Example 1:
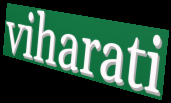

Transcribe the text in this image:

viharati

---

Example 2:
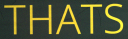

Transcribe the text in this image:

THATS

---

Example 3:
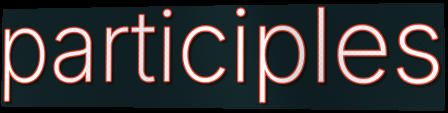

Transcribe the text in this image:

participles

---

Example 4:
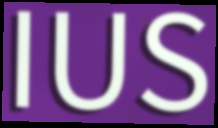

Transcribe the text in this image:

IUS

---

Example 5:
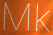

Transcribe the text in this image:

Mk